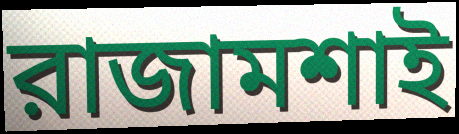
রাজামশাই